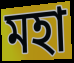
মহা